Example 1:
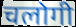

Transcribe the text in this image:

चलोगी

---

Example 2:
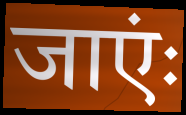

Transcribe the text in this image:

जाएंः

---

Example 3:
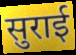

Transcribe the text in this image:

सुराई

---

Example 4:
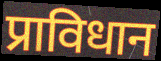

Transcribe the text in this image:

प्राविधान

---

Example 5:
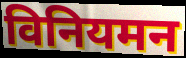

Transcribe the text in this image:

विनियमन